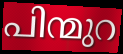
പിന്മുറ